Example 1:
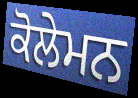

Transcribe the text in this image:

ਕੋਲੇਮਨ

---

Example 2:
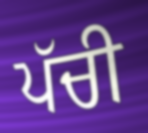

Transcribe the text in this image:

ਪੱਚੀ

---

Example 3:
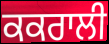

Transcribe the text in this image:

ਕਕਰਾਲੀ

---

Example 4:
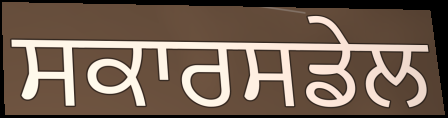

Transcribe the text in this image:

ਸਕਾਰਸਡੇਲ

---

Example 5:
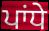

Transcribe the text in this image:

ਪਾਂਧੇ